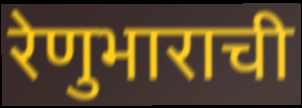
रेणुभाराची